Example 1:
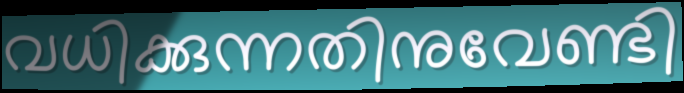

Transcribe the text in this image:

വധിക്കുന്നതിനുവേണ്ടി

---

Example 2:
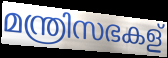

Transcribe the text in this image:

മന്ത്രിസഭകള്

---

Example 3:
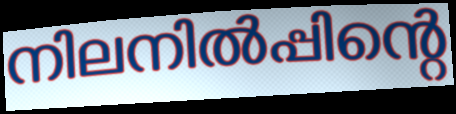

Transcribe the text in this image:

നിലനിൽപ്പിന്റെ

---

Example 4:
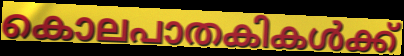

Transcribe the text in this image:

കൊലപാതകികൾക്ക്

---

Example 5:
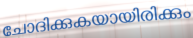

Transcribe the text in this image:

ചോദിക്കുകയായിരിക്കും